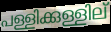
പള്ളിക്കുള്ളില്